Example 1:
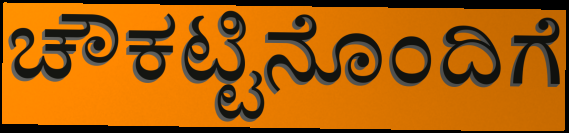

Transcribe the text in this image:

ಚೌಕಟ್ಟಿನೊಂದಿಗೆ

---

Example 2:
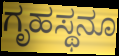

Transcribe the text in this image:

ಗೃಹಸ್ಥನೂ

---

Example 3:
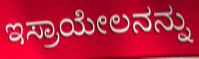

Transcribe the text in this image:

ಇಸ್ರಾಯೇಲನನ್ನು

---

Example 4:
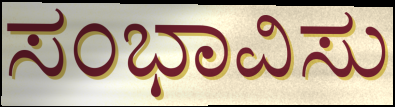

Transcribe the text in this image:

ಸಂಭಾವಿಸು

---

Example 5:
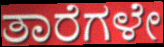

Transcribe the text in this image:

ತಾರೆಗಳೇ